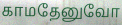
காமதேனுவோ